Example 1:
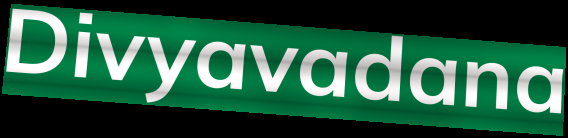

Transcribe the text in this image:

Divyavadana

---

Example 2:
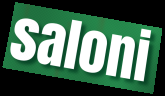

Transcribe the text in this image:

saloni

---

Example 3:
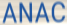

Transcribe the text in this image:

ANAC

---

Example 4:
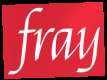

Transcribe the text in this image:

fray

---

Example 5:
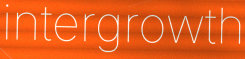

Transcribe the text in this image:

intergrowth